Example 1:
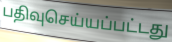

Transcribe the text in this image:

பதிவுசெய்யப்பட்டது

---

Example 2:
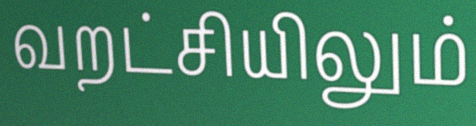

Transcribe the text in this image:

வறட்சியிலும்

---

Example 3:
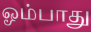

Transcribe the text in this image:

ஓம்பாது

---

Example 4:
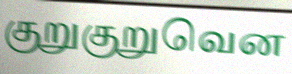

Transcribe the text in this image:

குறுகுறுவென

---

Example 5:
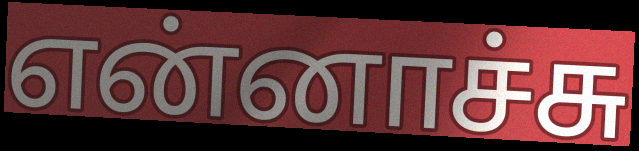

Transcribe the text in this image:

என்னாச்சு